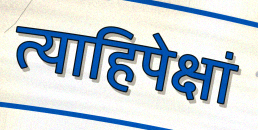
त्याहिपेक्षां